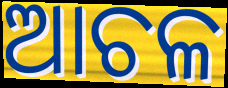
ଆଚଳ